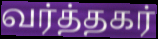
வர்த்தகர்